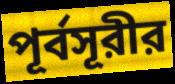
পূর্বসূরীর